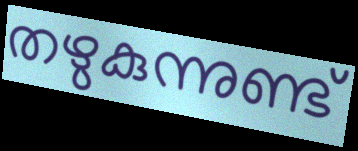
തഴുകുന്നുണ്ട്